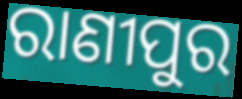
ରାଣୀପୁର